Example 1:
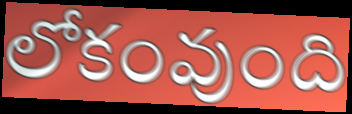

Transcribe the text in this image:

లోకంవుంది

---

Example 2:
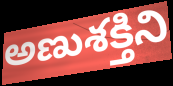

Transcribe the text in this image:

అణుశక్తిని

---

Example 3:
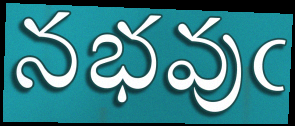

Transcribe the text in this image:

నభవుఁ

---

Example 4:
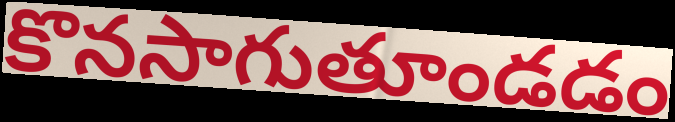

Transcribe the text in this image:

కొనసాగుతూండడం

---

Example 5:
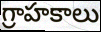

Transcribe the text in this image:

గ్రాహకాలు